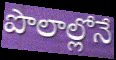
పొలాల్లోనే